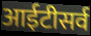
आईटीसर्व